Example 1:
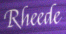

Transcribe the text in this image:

Rheede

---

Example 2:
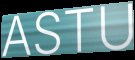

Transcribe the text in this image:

ASTU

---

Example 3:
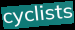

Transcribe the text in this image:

cyclists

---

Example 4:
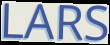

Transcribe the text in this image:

LARS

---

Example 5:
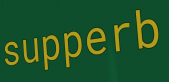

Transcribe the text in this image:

supperb